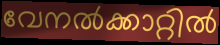
വേനൽക്കാറ്റിൽ